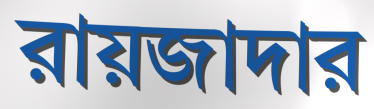
রায়জাদার